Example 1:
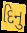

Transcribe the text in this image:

દિનુ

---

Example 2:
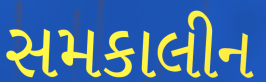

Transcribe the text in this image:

સમકાલીન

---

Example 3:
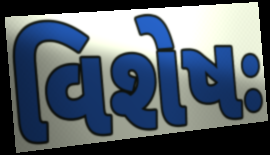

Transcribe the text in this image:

વિશેષઃ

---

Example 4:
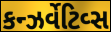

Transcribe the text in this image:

કન્ઝર્વેટિવ્સ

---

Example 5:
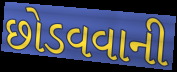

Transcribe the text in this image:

છોડવવાની